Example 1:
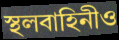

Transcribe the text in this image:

স্থলবাহিনীও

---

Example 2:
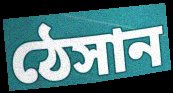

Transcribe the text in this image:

ঠেসান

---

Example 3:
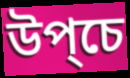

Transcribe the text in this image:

উপ্চে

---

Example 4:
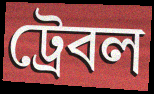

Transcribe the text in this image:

ট্রেবল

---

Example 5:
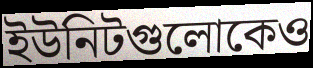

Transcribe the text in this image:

ইউনিটগুলোকেও